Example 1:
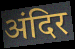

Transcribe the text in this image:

अंदिर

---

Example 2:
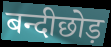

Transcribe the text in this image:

बन्दीछोड़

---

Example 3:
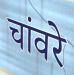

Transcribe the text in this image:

चांवरे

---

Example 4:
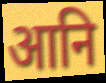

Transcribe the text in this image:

आनि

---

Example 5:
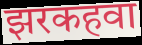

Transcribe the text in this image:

झरकहवा